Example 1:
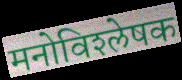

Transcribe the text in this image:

मनोविश्लेषक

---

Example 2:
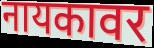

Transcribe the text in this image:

नायकावर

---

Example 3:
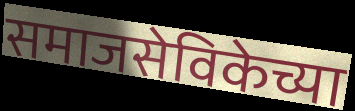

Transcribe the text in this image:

समाजसेविकेच्या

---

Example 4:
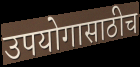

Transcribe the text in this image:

उपयोगासाठीच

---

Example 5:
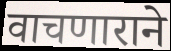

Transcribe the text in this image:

वाचणाराने